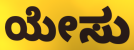
ಯೇಸು